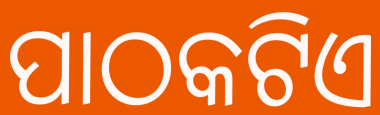
ପାଠକଟିଏ